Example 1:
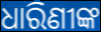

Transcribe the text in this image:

ଧାରିଣୀଙ୍କ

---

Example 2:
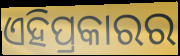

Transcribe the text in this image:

ଏହିପ୍ରକାରର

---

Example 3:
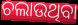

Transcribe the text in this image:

ଚଲାଉଥିବା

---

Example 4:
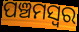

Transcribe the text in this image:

ପଞ୍ଚମସ୍ଵର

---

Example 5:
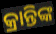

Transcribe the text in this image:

କ୍ରାନ୍ତିଙ୍କ